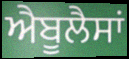
ਐਬੂਲੈਸਾਂ